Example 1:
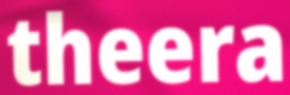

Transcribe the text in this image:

theera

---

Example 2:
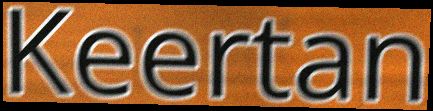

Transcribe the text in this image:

Keertan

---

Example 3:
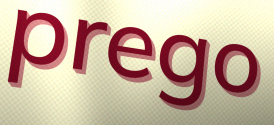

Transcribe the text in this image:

prego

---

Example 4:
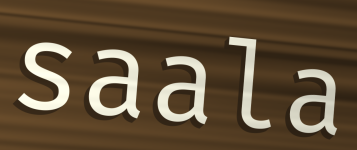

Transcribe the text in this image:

saala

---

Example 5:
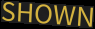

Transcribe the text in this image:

SHOWN